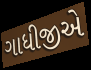
ગાધીજીએ